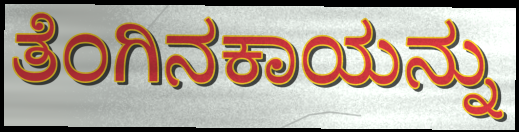
ತೆಂಗಿನಕಾಯನ್ನು